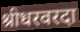
श्रीधरवरदा